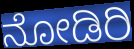
ನೋಡಿರಿ